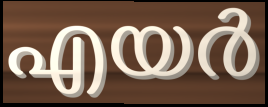
എയർ